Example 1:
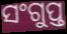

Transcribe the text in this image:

ସଂଗୁପ୍ତ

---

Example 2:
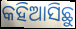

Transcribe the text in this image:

କହିଆସିଛୁ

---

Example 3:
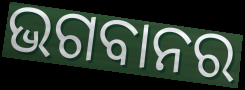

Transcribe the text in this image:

ଭଗବାନର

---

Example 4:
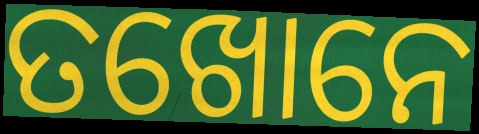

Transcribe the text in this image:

ତଖୋନେ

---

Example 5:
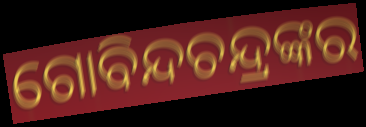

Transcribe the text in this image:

ଗୋବିନ୍ଦଚନ୍ଦ୍ରଙ୍କର